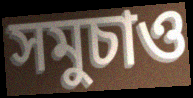
সমুচাও